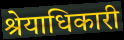
श्रेयाधिकारी